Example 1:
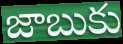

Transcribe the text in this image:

జాబుకు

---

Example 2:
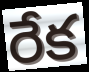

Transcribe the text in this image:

రేక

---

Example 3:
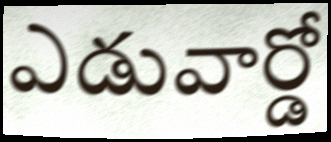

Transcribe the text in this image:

ఎడువార్డో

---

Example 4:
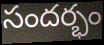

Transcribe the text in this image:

సందర్భం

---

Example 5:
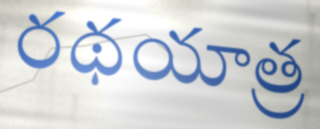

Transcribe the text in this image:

రథయాత్ర